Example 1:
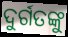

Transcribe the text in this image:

ଦୁର୍ଗତଙ୍କୁ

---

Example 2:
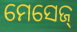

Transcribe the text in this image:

ମେସେଜ୍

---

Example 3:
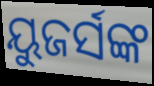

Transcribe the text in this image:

ୟୁଜର୍ସଙ୍କ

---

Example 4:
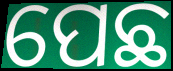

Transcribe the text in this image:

ପେଛ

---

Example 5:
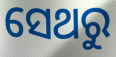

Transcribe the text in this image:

ସେଥରୁ